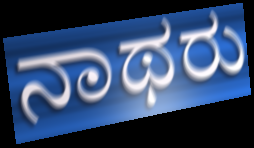
ನಾಥರು